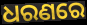
ଧରଣରେ